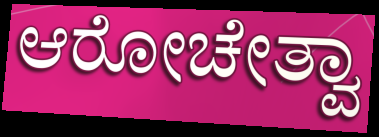
ಆರೋಚೇತ್ವಾ